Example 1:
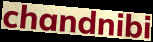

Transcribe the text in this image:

chandnibi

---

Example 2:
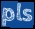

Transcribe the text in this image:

pls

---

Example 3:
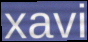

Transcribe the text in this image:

xavi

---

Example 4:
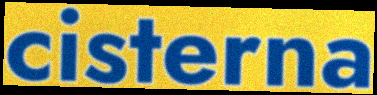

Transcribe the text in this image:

cisterna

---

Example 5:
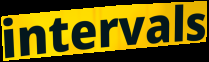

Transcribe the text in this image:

intervals